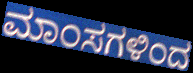
ಮಾಂಸಗಳಿಂದ